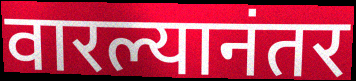
वारल्यानंतर